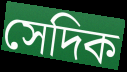
সেদিক